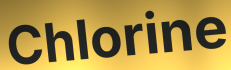
Chlorine